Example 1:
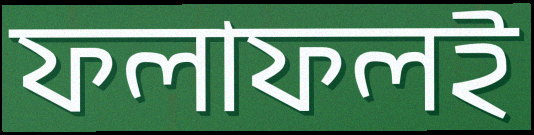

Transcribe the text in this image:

ফলাফলই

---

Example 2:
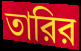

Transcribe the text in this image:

তারির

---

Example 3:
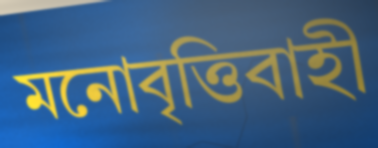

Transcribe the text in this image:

মনোবৃত্তিবাহী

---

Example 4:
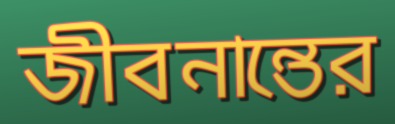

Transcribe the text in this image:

জীবনান্তের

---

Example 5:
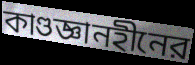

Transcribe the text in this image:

কাণ্ডজ্ঞানহীনের